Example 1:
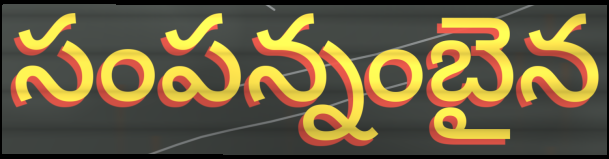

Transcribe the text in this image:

సంపన్నంబైన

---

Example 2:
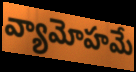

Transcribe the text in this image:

వ్యామోహమే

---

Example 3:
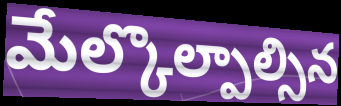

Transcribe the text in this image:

మేల్కొల్పాల్సిన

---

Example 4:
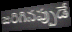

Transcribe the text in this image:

జరిగినప్పుడే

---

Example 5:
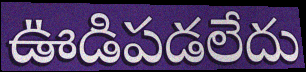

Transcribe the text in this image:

ఊడిపడలేదు